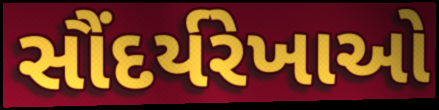
સૌંદર્યરેખાઓ